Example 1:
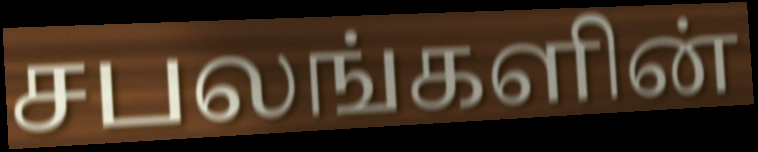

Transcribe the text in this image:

சபலங்களின்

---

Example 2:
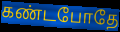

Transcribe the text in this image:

கண்டபோதே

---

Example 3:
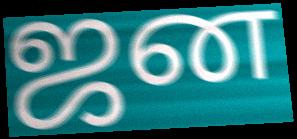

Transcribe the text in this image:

ஜன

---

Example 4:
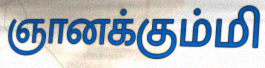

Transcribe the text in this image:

ஞானக்கும்மி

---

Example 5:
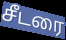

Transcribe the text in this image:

சீடரை